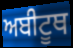
ਅਬੀਟੂਥ